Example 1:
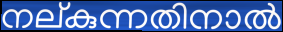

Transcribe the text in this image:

നല്കുന്നതിനാൽ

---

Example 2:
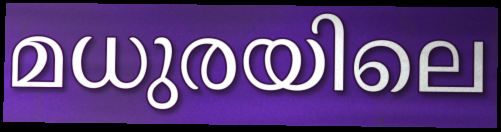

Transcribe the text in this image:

മധുരയിലെ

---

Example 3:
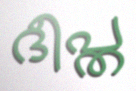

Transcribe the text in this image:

ദീപ്ത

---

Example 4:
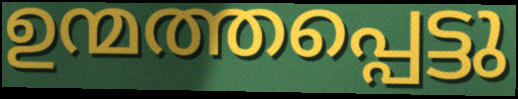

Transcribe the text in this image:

ഉന്മത്തപ്പെട്ടു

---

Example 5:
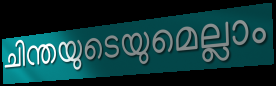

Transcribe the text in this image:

ചിന്തയുടെയുമെല്ലാം